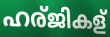
ഹര്ജികള്